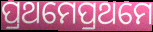
ପ୍ରଥମେପ୍ରଥମେ